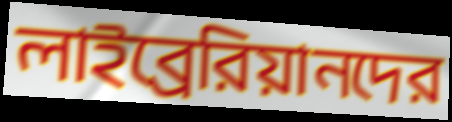
লাইব্রেরিয়ানদের